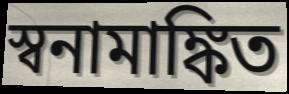
স্বনামাঙ্কিত